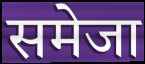
समेजा